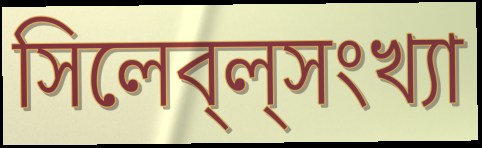
সিলেব্‌ল্‌সংখ্যা